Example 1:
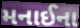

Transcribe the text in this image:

મનાઈના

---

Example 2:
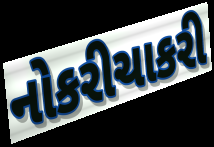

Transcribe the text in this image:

નોકરીચાકરી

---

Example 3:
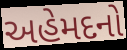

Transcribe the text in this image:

અહેમદનો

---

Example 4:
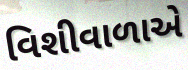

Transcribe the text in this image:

વિશીવાળાએ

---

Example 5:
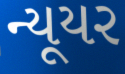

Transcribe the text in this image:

ન્યૂયર